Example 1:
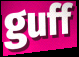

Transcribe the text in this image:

guff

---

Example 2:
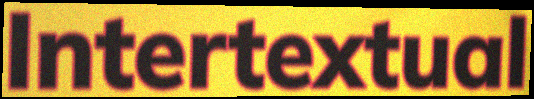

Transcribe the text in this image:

Intertextual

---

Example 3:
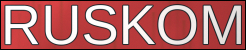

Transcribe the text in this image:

RUSKOM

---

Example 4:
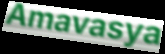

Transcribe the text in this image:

Amavasya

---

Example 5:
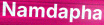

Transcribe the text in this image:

Namdapha